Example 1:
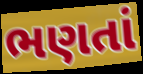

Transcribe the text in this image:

ભણતાં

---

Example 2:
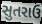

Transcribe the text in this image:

સુતરાઉ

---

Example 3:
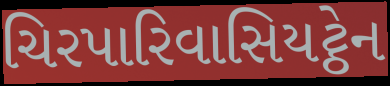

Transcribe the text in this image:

ચિરપારિવાસિયટ્ઠેન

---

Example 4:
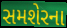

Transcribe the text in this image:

સમશેરના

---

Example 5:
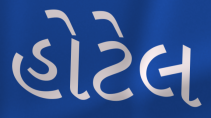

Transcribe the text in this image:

હોટેલ